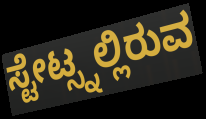
ಸ್ಟೇಟ್ಸ್ನಲ್ಲಿರುವ